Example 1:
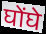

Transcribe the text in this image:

घोंघे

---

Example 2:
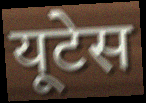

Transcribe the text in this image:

यूटेस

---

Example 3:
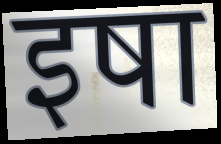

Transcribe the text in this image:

इषा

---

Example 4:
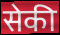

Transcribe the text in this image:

सेकी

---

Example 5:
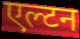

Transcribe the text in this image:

एल्टन